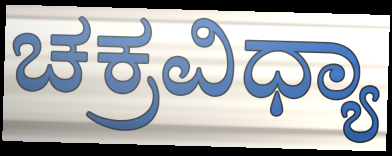
ಚಕ್ರವಿಧ್ಯಾ